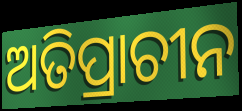
ଅତିପ୍ରାଚୀନ